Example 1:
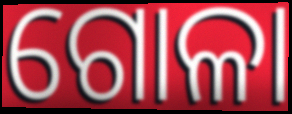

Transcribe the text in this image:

ଗୋଳା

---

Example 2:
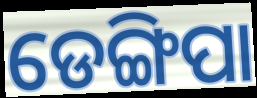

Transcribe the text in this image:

ଡେଙ୍ଗିପା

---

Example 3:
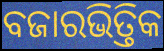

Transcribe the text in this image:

ବଜାରଭିତ୍ତିକ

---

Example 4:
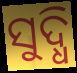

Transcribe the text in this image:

ସୁଦ୍ଧି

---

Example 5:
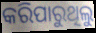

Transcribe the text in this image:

କରିପାରୁଥିଲୁ